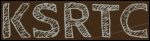
KSRTC